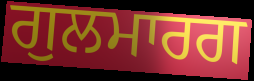
ਗੁਲਮਾਰਗ